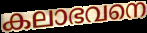
കലാഭവനെ